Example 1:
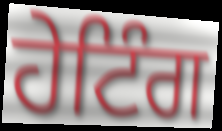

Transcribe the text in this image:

ਹੇਟਿੰਗ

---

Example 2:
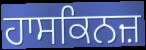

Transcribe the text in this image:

ਹਾਸਕਿਨਜ਼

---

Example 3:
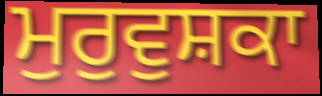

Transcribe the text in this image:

ਮੁਰੁਵੁਸ਼ਕਾ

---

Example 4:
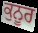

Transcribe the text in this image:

ਕੁਨੂਰ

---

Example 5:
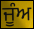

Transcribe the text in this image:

ਜੂੰਅ